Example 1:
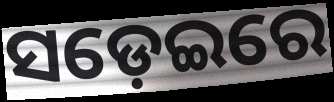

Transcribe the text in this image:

ସଡ଼େଇରେ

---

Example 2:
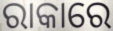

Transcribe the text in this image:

ରାକାରେ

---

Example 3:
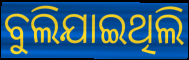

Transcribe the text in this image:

ବୁଲିଯାଇଥିଲି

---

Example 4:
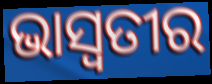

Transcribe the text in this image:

ଭାସ୍ଵତୀର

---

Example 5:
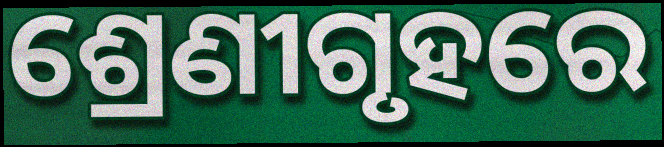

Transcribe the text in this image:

ଶ୍ରେଣୀଗୃହରେ